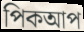
পিকআপ